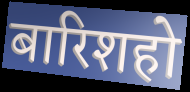
बारिशहो